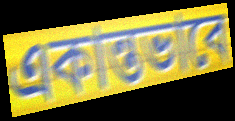
একান্তভাবে